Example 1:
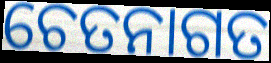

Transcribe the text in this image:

ଚେତନାଗତ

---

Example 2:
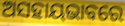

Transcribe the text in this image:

ଅସହାୟଭାବରେ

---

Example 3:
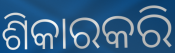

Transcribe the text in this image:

ଶିକାରକରି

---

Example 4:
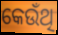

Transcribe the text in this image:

କେଉଁଥି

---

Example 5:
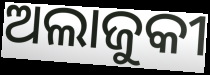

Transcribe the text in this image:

ଅଲାଜୁକୀ